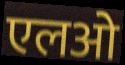
एलओ